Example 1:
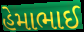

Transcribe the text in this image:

હેમાભાઈ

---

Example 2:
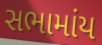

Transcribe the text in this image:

સભામાંય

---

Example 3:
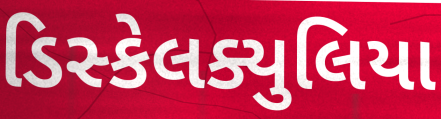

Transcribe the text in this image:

ડિસ્કેલક્યુલિયા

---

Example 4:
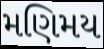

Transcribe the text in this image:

મણિમય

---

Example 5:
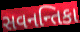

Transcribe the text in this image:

સવનન્તિકા